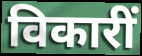
विकारीं